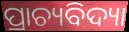
ପ୍ରାଚ୍ୟବିଦ୍ୟା